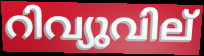
റിവ്യുവില്